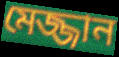
মেজ্জান